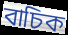
বাচিক